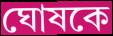
ঘোষকে